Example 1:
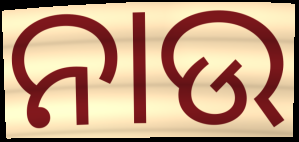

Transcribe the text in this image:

ନାଉ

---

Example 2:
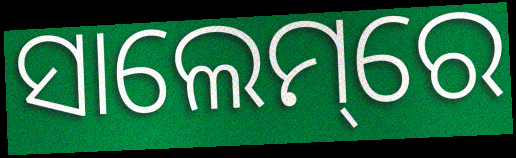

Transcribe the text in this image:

ସାଲେମ୍‌ରେ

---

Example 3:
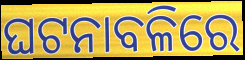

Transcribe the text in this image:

ଘଟନାବଳିରେ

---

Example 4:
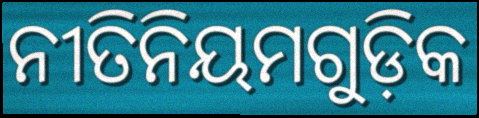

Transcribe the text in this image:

ନୀତିନିୟମଗୁଡ଼ିକ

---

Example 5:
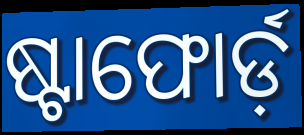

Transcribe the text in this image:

ଷ୍ଟାଫୋର୍ଡ଼